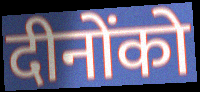
दीनोंको